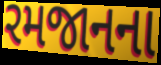
રમજાનના